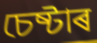
চেষ্টাৰ